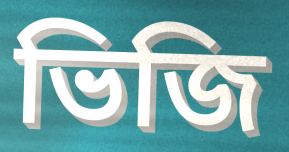
ভিজি